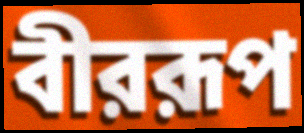
বীররূপ